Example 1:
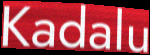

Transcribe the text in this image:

Kadalu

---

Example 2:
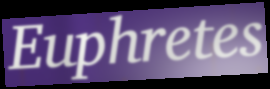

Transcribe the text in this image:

Euphretes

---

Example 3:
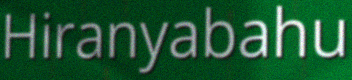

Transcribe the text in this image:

Hiranyabahu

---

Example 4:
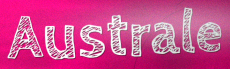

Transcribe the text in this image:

Australe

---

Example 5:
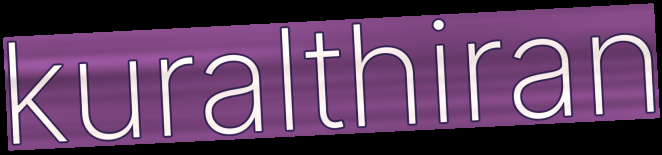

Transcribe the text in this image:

kuralthiran